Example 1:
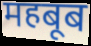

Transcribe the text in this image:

महबूब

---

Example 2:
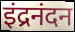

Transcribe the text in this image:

इंद्रनंदन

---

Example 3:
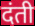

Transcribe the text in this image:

दंती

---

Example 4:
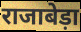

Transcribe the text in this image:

राजाबेड़ा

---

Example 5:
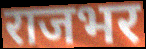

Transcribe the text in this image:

राजभर